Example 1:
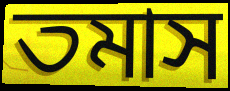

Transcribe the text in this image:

তমাস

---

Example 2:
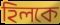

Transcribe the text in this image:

হিলকে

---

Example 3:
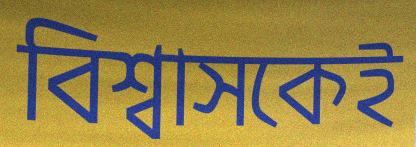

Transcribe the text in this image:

বিশ্বাসকেই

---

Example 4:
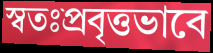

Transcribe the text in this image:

স্বতঃপ্রবৃত্তভাবে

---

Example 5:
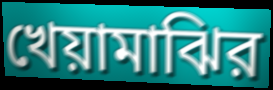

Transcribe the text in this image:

খেয়ামাঝির